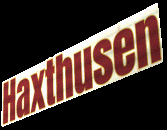
Haxthusen